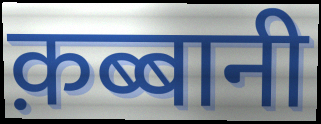
क़ब्बानी